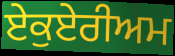
ਏਕੁਏਰੀਅਮ